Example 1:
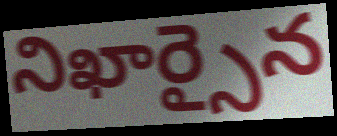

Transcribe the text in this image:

నిఖార్సైన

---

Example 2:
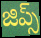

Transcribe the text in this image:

జిప్స్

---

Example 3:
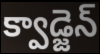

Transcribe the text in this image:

క్వాడ్జెన్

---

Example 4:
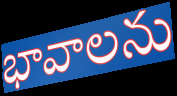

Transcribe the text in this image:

భావాలను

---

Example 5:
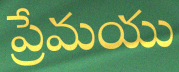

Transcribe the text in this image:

ప్రేమయు